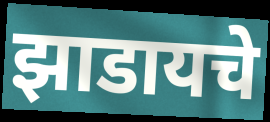
झाडायचे